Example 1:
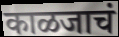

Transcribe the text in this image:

काळजाचं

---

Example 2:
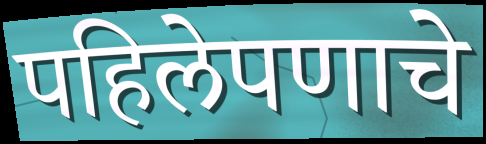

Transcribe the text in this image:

पहिलेपणाचे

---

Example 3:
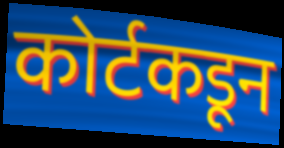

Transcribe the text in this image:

कोर्टकडून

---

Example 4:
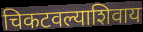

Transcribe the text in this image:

चिकटवल्याशिवाय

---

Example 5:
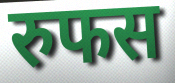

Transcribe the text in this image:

रुफस